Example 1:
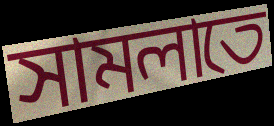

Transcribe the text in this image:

সামলাতে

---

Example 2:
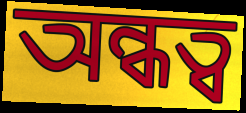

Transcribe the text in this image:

অন্ধত্ব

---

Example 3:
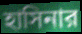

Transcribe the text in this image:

হাসিনার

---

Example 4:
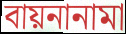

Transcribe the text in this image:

বায়নানামা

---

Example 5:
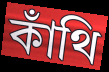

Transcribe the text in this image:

কাঁথি